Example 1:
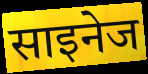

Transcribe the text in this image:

साइनेज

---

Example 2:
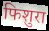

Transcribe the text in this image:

फिशुरा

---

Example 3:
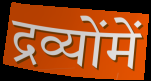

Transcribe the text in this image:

द्रव्योंमें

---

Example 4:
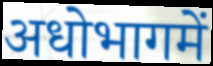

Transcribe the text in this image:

अधोभागमें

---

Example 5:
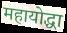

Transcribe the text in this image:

महायोद्धा